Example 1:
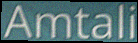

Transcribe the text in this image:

Amtali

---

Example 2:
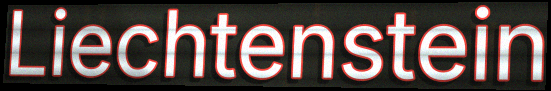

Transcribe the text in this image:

Liechtenstein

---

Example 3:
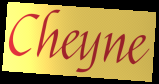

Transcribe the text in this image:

Cheyne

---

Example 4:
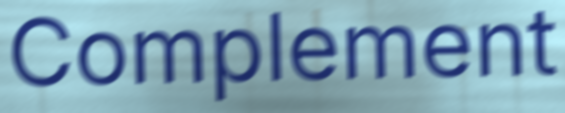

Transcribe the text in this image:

Complement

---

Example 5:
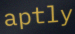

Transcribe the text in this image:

aptly